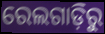
ରେଲଗାଡ଼ିରୁ